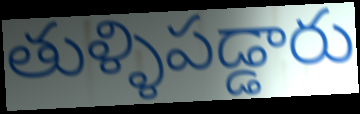
తుళ్ళిపడ్డారు